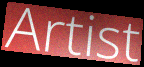
Artist